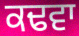
ਕਢਵਾ